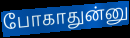
போகாதுன்னு